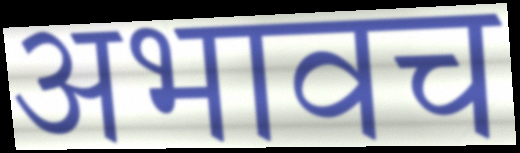
अभावच